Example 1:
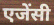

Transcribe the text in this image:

एजेंसी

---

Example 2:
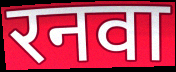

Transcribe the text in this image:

रनवा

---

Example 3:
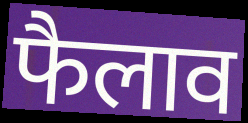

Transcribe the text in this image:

फैलाव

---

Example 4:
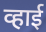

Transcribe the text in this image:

व्हाई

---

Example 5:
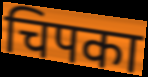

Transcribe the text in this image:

चिपका